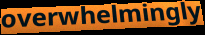
overwhelmingly